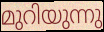
മുറിയുന്നു